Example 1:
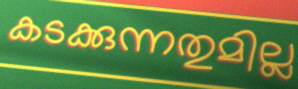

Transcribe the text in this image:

കടക്കുന്നതുമില്ല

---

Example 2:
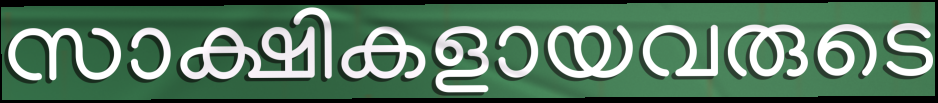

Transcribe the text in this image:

സാക്ഷികളായവരുടെ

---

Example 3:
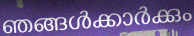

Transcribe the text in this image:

ഞങ്ങൾക്കാർക്കും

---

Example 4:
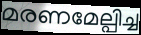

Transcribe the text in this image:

മരണമേല്പിച്ച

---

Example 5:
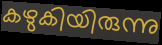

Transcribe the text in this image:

കഴുകിയിരുന്നു